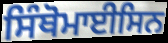
ਸਿੰਥੋਮਾਈਸਿਨ